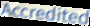
Accredited